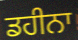
ਡਹੀਨਾ